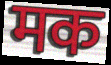
मक